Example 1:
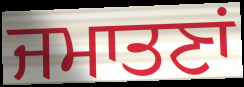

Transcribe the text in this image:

ਜਮਾਤਣਾਂ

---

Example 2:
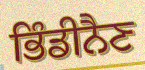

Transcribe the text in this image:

ਭਿੰਡੀਨੈਣ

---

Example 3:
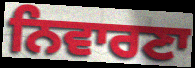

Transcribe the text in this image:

ਨਿਵਾਰਣਾ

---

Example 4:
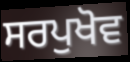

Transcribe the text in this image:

ਸਰਪੁਖੋਵ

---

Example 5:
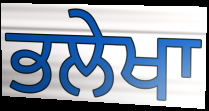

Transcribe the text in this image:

ਭਲੇਖਾ